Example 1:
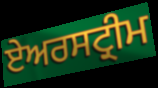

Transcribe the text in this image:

ਏਅਰਸਟ੍ਰੀਮ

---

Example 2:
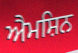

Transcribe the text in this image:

ਐਮਸ਼ਿਨ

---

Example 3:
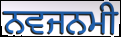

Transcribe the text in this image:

ਨਵਜਨਮੀ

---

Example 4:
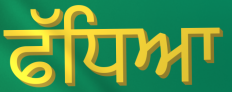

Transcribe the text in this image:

ਫੱਧਿਆ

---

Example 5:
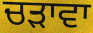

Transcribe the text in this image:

ਚੜਾਵਾ